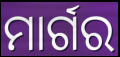
ମାର୍ଗର